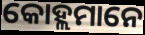
କୋହ୍ଲମାନେ